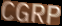
CGRP